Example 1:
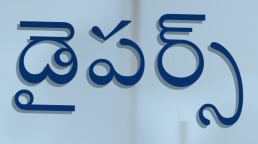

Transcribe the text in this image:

డైపర్స్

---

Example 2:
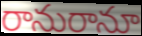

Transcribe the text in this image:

రానురానూ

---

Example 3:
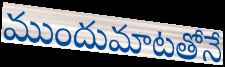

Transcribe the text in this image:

ముందుమాటతోనే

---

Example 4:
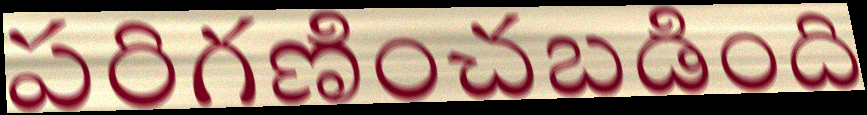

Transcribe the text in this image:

పరిగణించబడింది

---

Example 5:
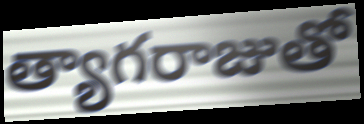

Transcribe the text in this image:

త్యాగరాజుతో